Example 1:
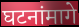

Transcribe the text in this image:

घटनांमागे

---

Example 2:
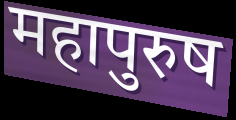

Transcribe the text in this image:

महापुरुष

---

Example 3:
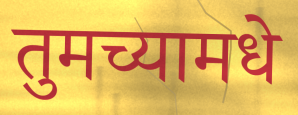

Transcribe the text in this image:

तुमच्यामधे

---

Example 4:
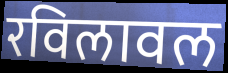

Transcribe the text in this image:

रविलावल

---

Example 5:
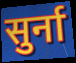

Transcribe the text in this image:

सुर्ना